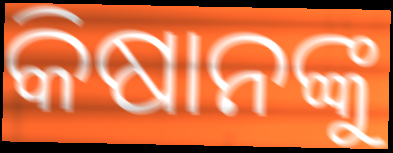
କିଷାନଙ୍କୁ